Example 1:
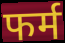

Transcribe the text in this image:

फर्म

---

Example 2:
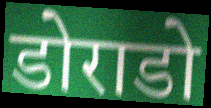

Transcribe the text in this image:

डोराडो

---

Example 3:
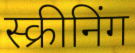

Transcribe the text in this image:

स्क्रीनिंग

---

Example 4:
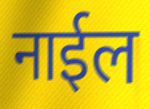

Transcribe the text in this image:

नाईल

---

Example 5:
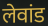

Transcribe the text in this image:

लेवांड